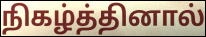
நிகழ்த்தினால்